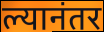
ल्यानंतर